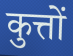
कुत्तों